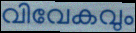
വിവേകവും